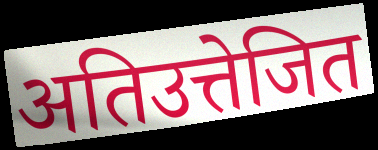
अतिउत्तेजित